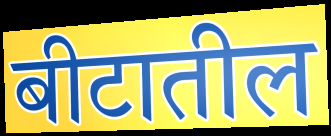
बीटातील